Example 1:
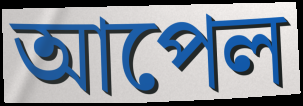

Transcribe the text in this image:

আপেল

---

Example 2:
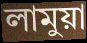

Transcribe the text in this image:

লামুয়া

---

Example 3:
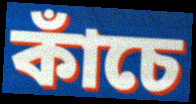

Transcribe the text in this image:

কাঁচে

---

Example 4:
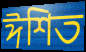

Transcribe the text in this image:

ঈশিত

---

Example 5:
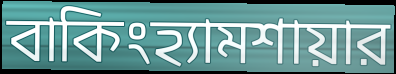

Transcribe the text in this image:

বাকিংহ্যামশায়ার